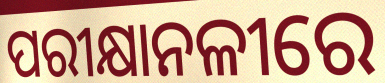
ପରୀକ୍ଷାନଳୀରେ